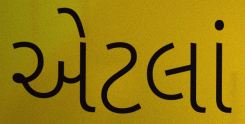
એટલાં